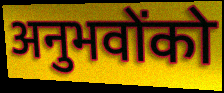
अनुभवोंको